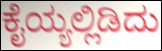
ಕೈಯ್ಯಲ್ಲಿಡಿದು